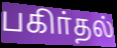
பகிர்தல்